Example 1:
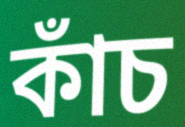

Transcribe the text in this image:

কাঁচ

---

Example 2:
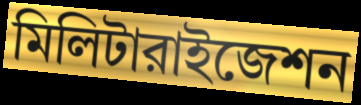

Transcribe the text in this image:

মিলিটারাইজেশন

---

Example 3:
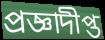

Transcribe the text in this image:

প্রজ্ঞাদীপ্ত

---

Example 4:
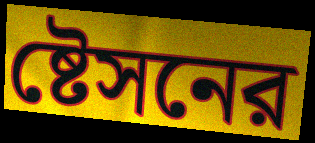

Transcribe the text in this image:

ষ্টেসনের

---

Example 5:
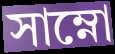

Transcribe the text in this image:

সাম্নো